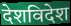
देशविदेश